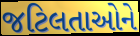
જટિલતાઓને